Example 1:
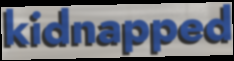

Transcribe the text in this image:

kidnapped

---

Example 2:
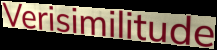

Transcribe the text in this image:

Verisimilitude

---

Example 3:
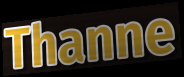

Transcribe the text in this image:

Thanne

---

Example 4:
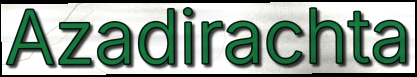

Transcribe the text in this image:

Azadirachta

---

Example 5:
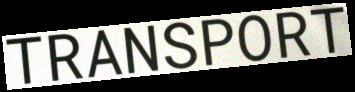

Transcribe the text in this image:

TRANSPORT